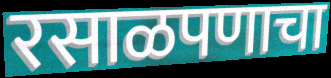
रसाळपणाचा